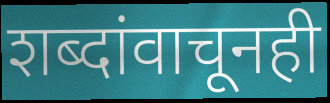
शब्दांवाचूनही